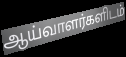
ஆய்வாளர்களிடம்